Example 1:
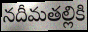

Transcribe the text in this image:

నదీమతల్లికి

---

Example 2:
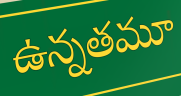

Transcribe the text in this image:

ఉన్నతమూ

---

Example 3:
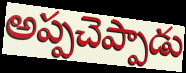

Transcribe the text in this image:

అప్పచెప్పాడు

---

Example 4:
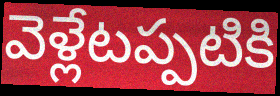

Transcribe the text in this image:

వెళ్లేటప్పటికి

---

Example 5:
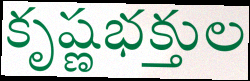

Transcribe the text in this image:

కృష్ణభక్తుల